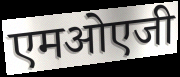
एमओएजी